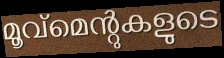
മൂവ്മെന്റുകളുടെ